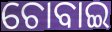
ଚୋବାଇ